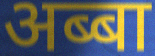
अब्बा